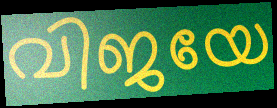
വിജയേ